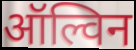
ऑल्विन